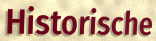
Historische